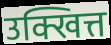
उक्खित्त